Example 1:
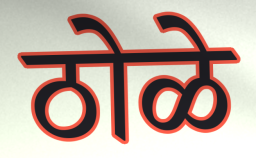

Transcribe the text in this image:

ठोळे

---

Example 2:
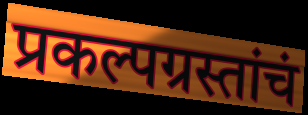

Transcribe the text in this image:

प्रकल्पग्रस्तांचं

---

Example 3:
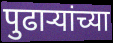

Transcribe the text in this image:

पुढाऱ्यांच्या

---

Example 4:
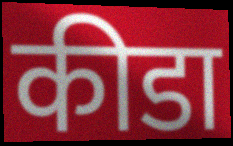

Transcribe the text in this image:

कीडा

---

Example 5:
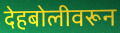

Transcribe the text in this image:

देहबोलीवरून